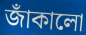
জাঁকালো